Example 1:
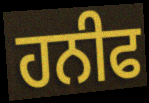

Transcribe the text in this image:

ਹਨੀਫ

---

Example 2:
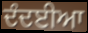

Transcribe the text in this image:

ਦੰਦਈਆ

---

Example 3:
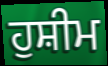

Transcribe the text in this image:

ਹੁਸ਼ੀਮ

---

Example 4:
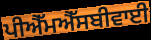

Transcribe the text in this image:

ਪੀਐੱਮਐੱਸਬੀਵਾਈ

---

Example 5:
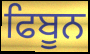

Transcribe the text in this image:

ਫਿਬੂਨ